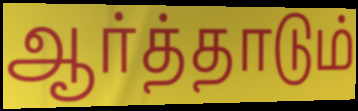
ஆர்த்தாடும்